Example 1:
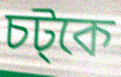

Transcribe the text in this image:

চট্‌কে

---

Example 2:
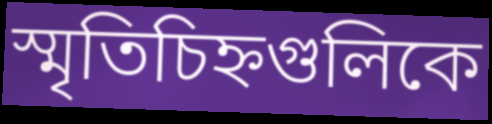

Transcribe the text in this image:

স্মৃতিচিহ্নগুলিকে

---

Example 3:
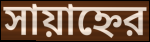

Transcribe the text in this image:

সায়াহ্নের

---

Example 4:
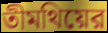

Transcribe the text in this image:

তীমথিয়ের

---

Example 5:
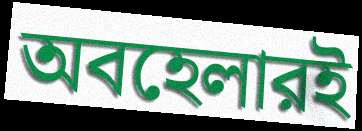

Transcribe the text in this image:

অবহেলারই